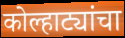
कोल्हाट्यांचा